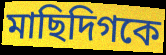
মাছিদিগকে